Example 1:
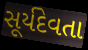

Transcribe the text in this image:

સૂર્યદેવતા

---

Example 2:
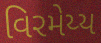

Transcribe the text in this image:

વિરમેય્ય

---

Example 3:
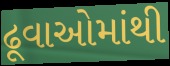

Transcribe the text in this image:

ઢૂવાઓમાંથી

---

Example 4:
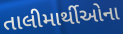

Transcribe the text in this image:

તાલીમાર્થીઓના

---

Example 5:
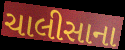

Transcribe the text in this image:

ચાલીસાના